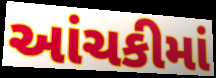
આંચકીમાં